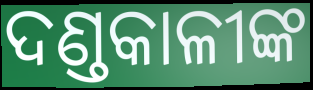
ଦଣ୍ଡକାଳୀଙ୍କ